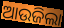
ଆଉଜିଲା